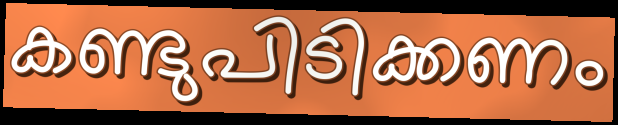
കണ്ടുപിടിക്കണം